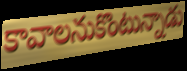
కావాలనుకొంటున్నాడు